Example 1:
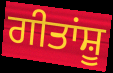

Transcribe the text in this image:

ਗੀਤਾਂਸ਼ੂ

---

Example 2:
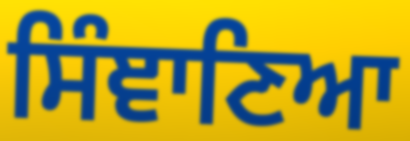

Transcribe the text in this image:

ਸਿੰਞਾਣਿਆ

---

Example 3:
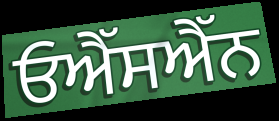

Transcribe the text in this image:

ਓਐੱਸਐੱਨ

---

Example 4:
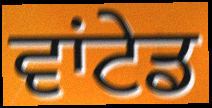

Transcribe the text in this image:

ਵਾਂਟੇਡ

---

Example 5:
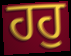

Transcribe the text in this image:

ਹਹੁ